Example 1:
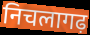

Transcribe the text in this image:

निचलागढ़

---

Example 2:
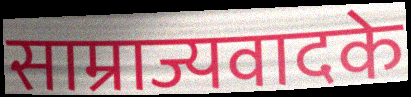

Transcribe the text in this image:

साम्राज्यवादके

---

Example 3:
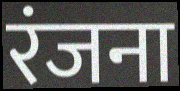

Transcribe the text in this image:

रंजना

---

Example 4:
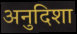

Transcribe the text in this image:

अनुदिशा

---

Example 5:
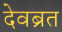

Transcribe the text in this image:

देवब्रत